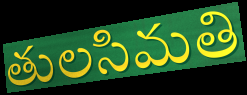
తులసిమతి